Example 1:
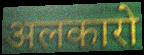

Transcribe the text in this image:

अलकारो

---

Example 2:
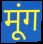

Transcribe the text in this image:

मूंग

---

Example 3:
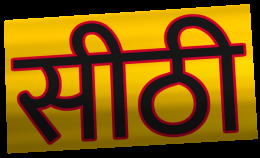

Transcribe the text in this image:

सीठी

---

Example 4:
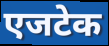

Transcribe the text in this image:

एजटेक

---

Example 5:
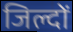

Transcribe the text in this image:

जिल्दों